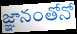
జ్ఞానంతోనో